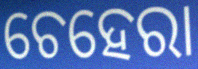
ଚେହେରା